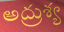
అద్రుశ్య